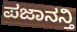
ಪಜಾನನ್ತಿ